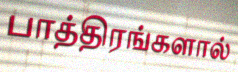
பாத்திரங்களால்